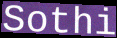
Sothi